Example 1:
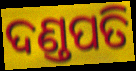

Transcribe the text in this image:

ଦଣ୍ଡପତି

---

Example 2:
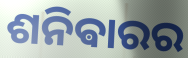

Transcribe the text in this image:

ଶନିଵାରର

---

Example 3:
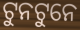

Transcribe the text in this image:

ଟୁନଟୁନେ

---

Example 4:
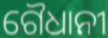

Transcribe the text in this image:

ଗୈଧାନୀ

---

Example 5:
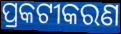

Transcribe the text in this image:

ପ୍ରକଟୀକରଣ